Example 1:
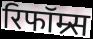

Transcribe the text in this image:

रिफॉम्र्स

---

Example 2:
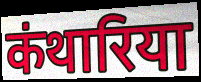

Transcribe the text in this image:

कंथारिया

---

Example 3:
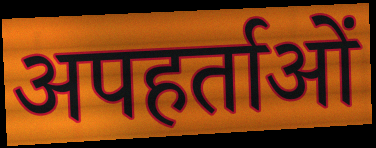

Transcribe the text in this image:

अपहर्ताओं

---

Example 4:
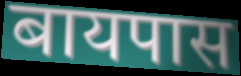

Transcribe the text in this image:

बायपास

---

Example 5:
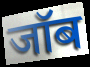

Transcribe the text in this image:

जॉब